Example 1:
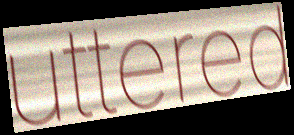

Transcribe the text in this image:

uttered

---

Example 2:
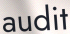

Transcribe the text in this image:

audit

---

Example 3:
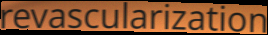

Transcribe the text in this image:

revascularization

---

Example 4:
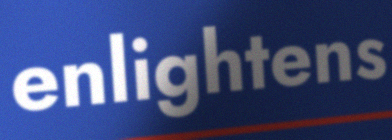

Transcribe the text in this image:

enlightens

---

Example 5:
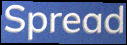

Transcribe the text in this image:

Spread